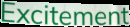
Excitement